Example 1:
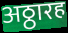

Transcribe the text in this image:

अठ्ठारह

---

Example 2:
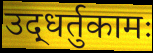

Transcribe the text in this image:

उद्धर्तुकामः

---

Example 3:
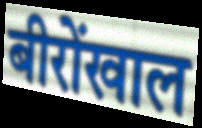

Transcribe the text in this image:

बीरोंखाल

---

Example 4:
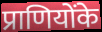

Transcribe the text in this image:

प्राणियोंके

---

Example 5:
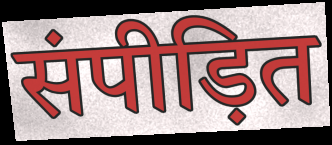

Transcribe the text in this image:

संपीड़ित